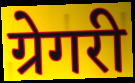
ग्रेगरी